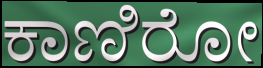
ಕಾಣಿರೋ